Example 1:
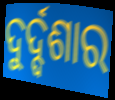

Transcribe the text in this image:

ଦୁର୍ଦ୍ଦଶାର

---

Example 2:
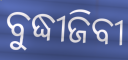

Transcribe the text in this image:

ବୁଦ୍ଧୀଜିବୀ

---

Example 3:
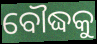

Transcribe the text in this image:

ବୌଦ୍ଧକୁ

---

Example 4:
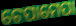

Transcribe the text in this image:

ଚେପାମେପା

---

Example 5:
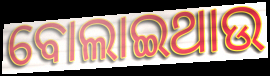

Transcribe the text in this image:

ବୋଲାଇଥାଉ